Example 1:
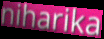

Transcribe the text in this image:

niharika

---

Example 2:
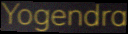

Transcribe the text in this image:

Yogendra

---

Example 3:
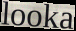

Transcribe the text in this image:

looka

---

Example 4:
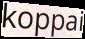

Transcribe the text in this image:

koppai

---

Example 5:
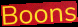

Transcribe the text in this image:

Boons